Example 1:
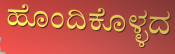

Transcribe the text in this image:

ಹೊಂದಿಕೊಳ್ಳದ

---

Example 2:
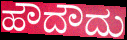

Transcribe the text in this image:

ಹೌದೌದು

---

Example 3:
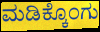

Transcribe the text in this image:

ಮಡಿಕ್ಕೊಂಗು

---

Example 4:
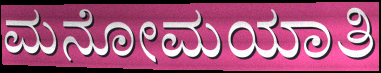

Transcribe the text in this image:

ಮನೋಮಯಾತಿ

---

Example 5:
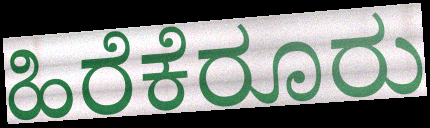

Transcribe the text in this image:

ಹಿರೆಕೆರೂರು